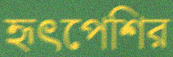
হৃৎপেশির